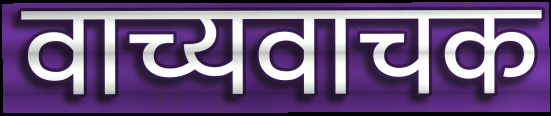
वाच्यवाचक